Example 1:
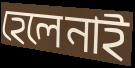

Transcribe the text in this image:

হেলেনাই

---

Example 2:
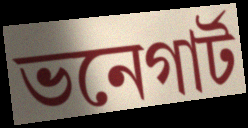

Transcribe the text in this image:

ভনেগার্ট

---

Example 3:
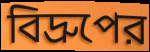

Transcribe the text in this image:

বিদ্রুপের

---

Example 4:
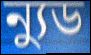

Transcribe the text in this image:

ন্যুড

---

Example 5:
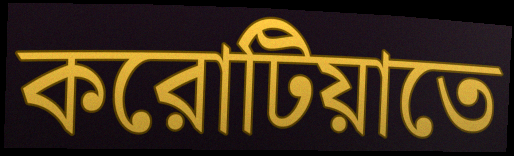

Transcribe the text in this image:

করোটিয়াতে